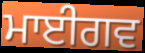
ਮਾਈਗਵ